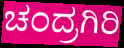
ಚಂದ್ರಗಿರಿ